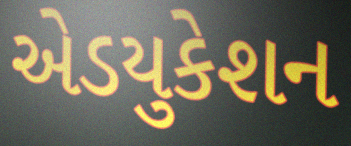
એડયુકેશન